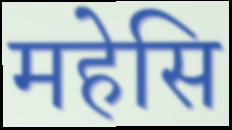
महेसि